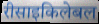
रीसाइकिलेबल